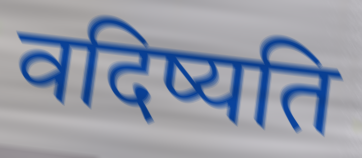
वदिष्यति